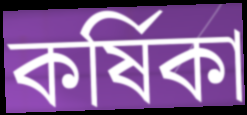
কর্ষিকা